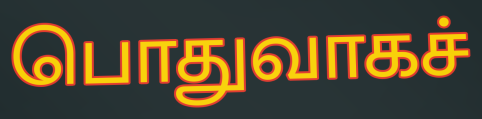
பொதுவாகச்